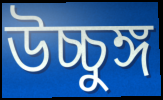
উচ্চুঙ্গ